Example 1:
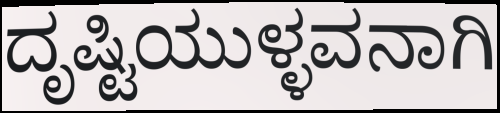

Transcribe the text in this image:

ದೃಷ್ಟಿಯುಳ್ಳವನಾಗಿ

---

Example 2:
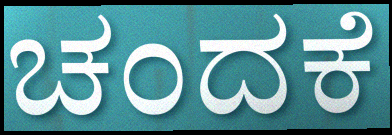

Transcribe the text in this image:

ಚಂದಕೆ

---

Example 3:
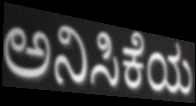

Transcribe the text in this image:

ಅನಿಸಿಕೆಯ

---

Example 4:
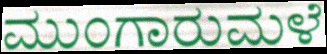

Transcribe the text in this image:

ಮುಂಗಾರುಮಳೆ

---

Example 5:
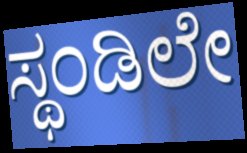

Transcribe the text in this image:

ಸ್ಥಂಡಿಲೇ